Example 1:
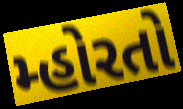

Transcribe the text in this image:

મ્હોરતો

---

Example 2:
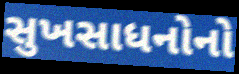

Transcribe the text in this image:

સુખસાધનોનો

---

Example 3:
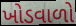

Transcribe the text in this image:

ખોડવાળો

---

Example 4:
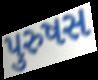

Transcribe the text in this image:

પુરુષસ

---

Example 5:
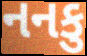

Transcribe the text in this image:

નનકુ